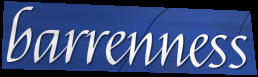
barrenness